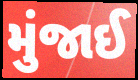
મુંજાઈ